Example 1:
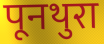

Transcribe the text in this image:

पूनथुरा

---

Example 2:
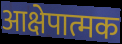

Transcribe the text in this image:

आक्षेपात्मक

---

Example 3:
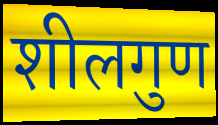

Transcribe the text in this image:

शीलगुण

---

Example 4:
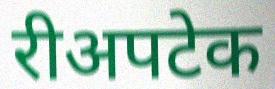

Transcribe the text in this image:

रीअपटेक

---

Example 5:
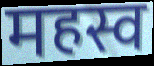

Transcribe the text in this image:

महस्व